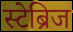
स्टेब्रिज